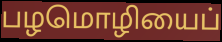
பழமொழியைப்